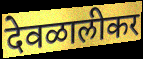
देवळालीकर